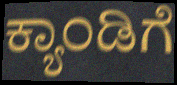
ಕ್ಯಾಂಡಿಗೆ